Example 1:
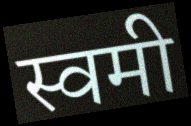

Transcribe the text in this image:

स्वमी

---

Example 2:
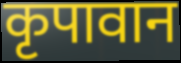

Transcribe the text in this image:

कृपावान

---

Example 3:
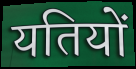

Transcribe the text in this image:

यतियों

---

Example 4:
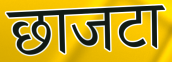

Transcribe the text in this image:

छाजटा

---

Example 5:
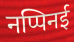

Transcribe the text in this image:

नप्पिनई